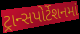
ટ્રાન્સપોર્ટેશનમાં